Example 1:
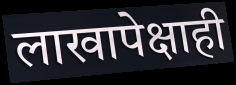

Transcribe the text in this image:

लाखापेक्षाही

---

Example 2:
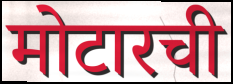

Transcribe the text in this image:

मोटारची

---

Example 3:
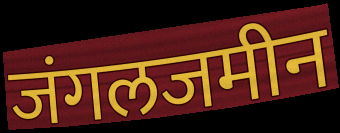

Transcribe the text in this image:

जंगलजमीन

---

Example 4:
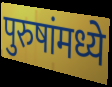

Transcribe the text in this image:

पुरुषांमध्ये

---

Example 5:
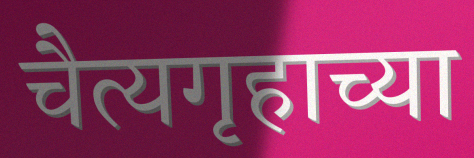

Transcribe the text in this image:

चैत्यगृहाच्या